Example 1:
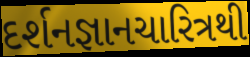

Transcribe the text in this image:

દર્શનજ્ઞાનચારિત્રથી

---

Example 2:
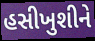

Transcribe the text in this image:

હસીખુશીને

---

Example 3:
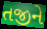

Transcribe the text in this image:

તજીને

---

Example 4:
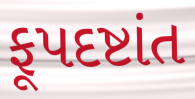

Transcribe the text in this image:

ફૂપદષ્ટાંત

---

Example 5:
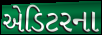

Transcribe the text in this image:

એડિટરના